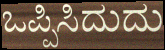
ಒಪ್ಪಿಸಿದುದು